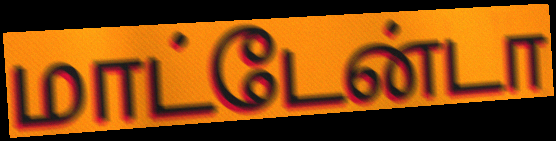
மாட்டேன்டா